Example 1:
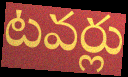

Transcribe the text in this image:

టవర్లు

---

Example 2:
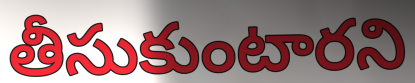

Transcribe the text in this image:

తీసుకుంటారని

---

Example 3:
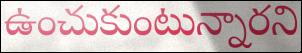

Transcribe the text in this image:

ఉంచుకుంటున్నారని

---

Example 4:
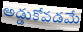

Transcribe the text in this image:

అడ్డుకోవడమే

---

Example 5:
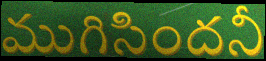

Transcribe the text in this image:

ముగిసిందనీ